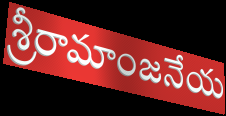
శ్రీరామాంజనేయ